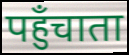
पहुँचाता